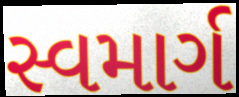
સ્વમાર્ગ